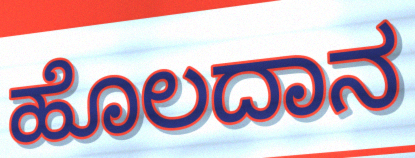
ಹೊಲದಾನ